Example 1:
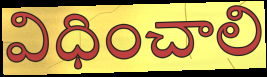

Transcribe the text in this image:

విధించాలి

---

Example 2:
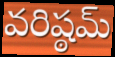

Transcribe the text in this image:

వరిష్ఠమ్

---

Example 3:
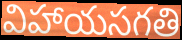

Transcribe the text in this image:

విహాయసగతి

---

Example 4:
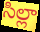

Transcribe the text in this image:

సిల్లా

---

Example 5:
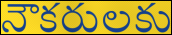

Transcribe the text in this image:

నౌకరులకు